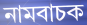
নামবাচক